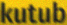
kutub